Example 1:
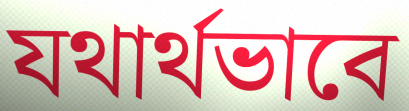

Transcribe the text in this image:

যথার্থভাবে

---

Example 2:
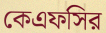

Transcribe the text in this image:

কেএফসির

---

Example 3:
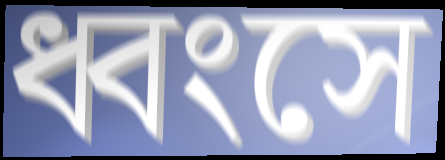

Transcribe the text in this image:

ধ্বংসে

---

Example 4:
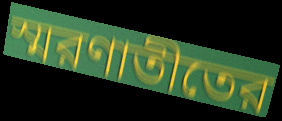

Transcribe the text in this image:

স্মরণাতীতের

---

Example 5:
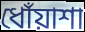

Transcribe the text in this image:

ধোঁয়াশা